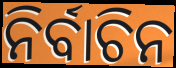
ନିର୍ବାଚିନ